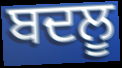
ਬਦਲੂ